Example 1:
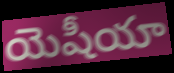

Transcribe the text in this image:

యెషీయా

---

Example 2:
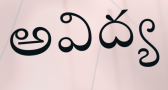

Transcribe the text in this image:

అవిద్య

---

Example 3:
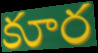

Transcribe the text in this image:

కూర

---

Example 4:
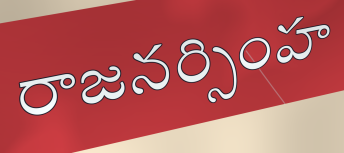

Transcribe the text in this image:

రాజనర్సింహ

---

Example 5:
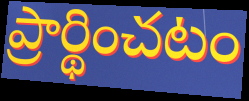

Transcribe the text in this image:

ప్రార్థించటం